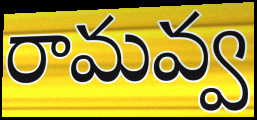
రామవ్వ